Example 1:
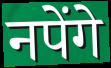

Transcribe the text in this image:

नपेंगे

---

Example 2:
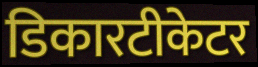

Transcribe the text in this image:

डिकारटीकेटर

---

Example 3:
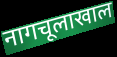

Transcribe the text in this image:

नागचूलाखाल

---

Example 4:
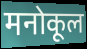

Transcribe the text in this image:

मनोकूल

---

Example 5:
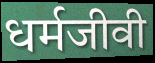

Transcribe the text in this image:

धर्मजीवी